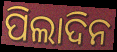
ପିଲାଦିନ